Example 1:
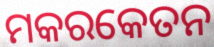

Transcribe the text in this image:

ମକରକେତନ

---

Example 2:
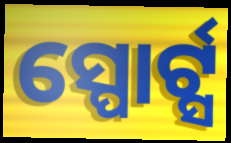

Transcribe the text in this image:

ସ୍ପୋର୍ଟ୍ସ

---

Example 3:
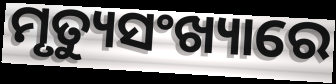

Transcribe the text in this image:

ମୃତ୍ୟୁସଂଖ୍ୟାରେ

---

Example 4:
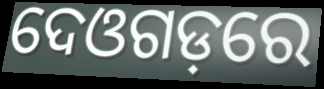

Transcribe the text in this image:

ଦେଓଗଡ଼ରେ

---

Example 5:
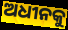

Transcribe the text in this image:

ଅଧୀନକୁ